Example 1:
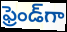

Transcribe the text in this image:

ఫ్రెండ్‌గా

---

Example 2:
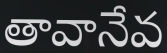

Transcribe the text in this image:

తావానేవ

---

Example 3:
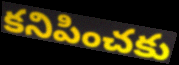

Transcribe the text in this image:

కనిపించకు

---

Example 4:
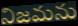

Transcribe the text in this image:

నిజమను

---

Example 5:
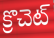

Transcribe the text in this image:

క్రొచెట్